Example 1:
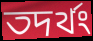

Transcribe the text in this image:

তদর্থং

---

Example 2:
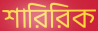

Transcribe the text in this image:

শারিরিক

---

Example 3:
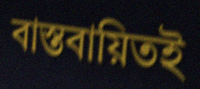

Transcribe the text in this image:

বাস্তবায়িতই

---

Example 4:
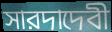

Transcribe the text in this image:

সারদাদেবী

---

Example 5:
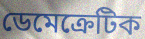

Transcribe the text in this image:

ডেমেক্রেটিক